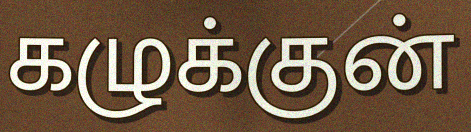
கழுக்குன்